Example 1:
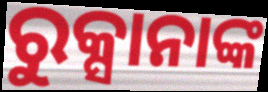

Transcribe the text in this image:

ରୁକ୍ସାନାଙ୍କ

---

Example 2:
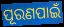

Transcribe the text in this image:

ପୂରଣପାଇଁ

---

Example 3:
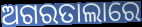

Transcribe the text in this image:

ଅଗରତାଲାରେ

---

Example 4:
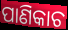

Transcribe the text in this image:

ପାଣିକାଚ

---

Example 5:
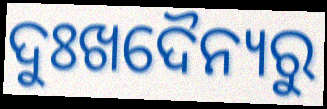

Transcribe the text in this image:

ଦୁଃଖଦୈନ୍ୟରୁ